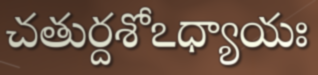
చతుర్దశోఽధ్యాయః